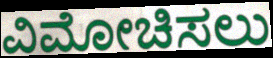
ವಿಮೋಚಿಸಲು